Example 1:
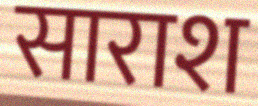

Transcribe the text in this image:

साराश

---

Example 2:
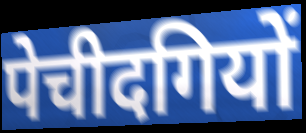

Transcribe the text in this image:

पेचीदगियों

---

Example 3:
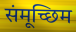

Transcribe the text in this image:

संमूच्छिम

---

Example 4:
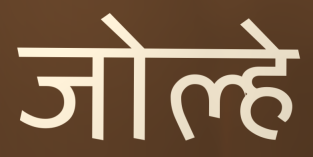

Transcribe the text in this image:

जोल्हे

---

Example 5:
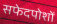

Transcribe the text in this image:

सफेदपोशों